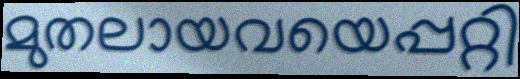
മുതലായവയെപ്പറ്റി